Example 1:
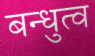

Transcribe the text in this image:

बन्धुत्व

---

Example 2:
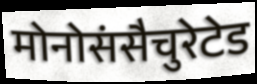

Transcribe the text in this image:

मोनोसंसैचुरेटेड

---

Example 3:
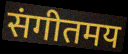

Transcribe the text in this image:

संगीतमय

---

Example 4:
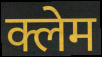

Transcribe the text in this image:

क्लेम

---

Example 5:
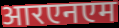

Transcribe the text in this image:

आरएनएम